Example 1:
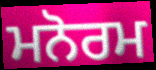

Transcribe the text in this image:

ਮਨੋਰਮ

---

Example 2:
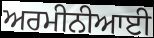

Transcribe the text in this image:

ਅਰਮੀਨੀਆਈ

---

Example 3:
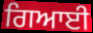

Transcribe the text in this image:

ਗਿਆਈ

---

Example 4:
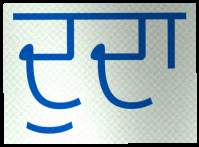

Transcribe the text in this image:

ਦੁਦਾ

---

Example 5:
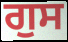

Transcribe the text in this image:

ਗੁਸ